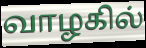
வாழகில்